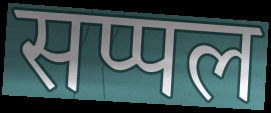
सप्पल